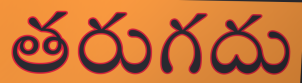
తరుగదు